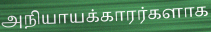
அநியாயக்காரர்களாக